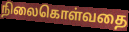
நிலைகொள்வதை